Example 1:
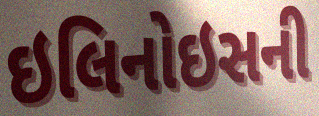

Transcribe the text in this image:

ઇલિનોઇસની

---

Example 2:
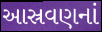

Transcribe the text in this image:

આસ્રવણનાં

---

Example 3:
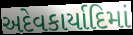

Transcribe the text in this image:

અદેવકાર્યાદિમાં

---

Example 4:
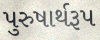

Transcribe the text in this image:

પુરુષાર્થરૂપ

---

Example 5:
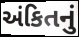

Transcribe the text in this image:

અંકિતનું